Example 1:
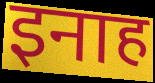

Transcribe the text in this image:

इनाह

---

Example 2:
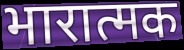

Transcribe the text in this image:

भारात्मक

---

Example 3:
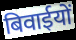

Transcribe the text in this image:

बिवाईयों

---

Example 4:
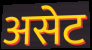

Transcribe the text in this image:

असेट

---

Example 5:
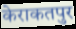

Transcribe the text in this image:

केराकतपुर